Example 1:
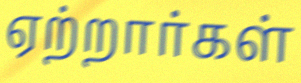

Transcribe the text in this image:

ஏற்றார்கள்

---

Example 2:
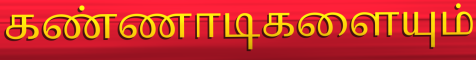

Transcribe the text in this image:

கண்ணாடிகளையும்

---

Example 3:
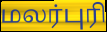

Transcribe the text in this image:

மலர்புரி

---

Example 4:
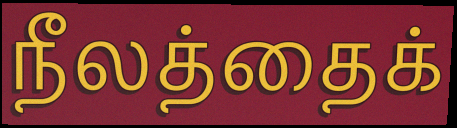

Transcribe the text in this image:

நீலத்தைக்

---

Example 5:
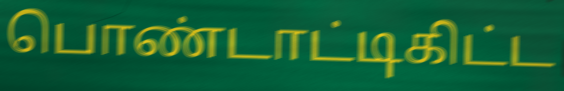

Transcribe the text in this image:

பொண்டாட்டிகிட்ட